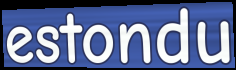
estondu